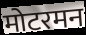
मोटरमन